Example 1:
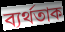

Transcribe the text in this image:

ব্যৰ্থতাক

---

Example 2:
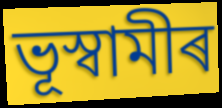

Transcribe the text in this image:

ভূস্বামীৰ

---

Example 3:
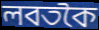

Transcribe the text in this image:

লবতকৈ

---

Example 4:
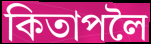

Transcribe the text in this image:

কিতাপলৈ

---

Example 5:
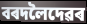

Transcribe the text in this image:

বৰদলৈদেৱৰ